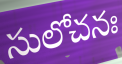
సులోచనః